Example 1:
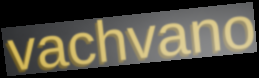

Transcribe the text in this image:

vachvano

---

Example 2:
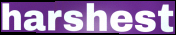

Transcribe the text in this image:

harshest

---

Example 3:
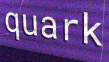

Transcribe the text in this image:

quark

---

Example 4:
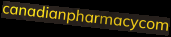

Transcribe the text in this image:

canadianpharmacycom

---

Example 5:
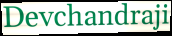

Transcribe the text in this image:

Devchandraji